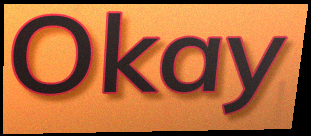
Okay